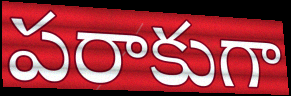
పరాకుగా